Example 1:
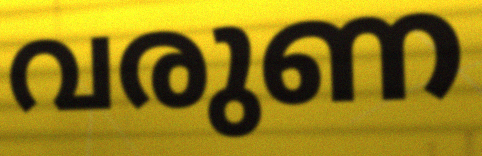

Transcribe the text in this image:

വരുണ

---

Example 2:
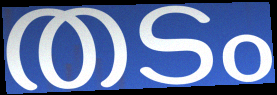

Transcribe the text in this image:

തടം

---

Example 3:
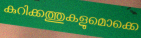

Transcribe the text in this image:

കുറിക്കത്തുകളുമൊക്കെ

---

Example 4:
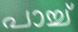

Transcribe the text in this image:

പാച്ച്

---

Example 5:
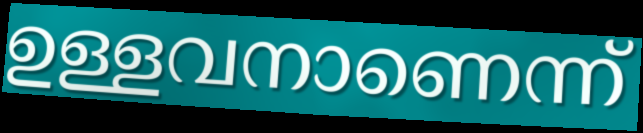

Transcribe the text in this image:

ഉള്ളവനാണെന്ന്